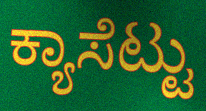
ಕ್ಯಾಸೆಟ್ಟು